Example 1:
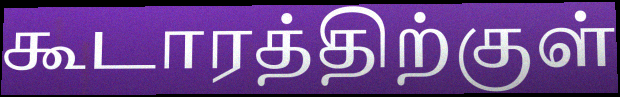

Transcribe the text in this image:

கூடாரத்திற்குள்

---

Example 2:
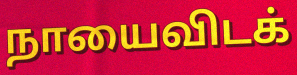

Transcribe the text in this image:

நாயைவிடக்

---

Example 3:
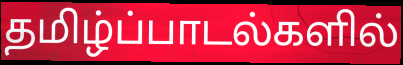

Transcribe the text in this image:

தமிழ்ப்பாடல்களில்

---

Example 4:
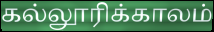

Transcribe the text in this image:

கல்லூரிக்காலம்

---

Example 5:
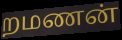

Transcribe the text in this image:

றமணன்